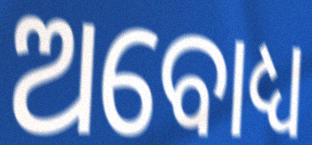
ଅବୋଧ୍ୟ